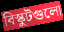
বিস্কুটগুলো